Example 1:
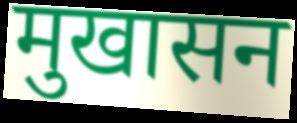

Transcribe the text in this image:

मुखासन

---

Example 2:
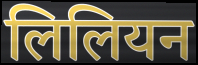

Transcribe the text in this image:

लिलियन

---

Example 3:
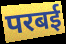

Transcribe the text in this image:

परबई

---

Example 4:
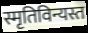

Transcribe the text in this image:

स्मृतिविन्यस्त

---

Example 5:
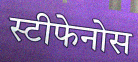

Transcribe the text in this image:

स्टीफेनोस